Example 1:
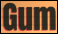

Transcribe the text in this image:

Gum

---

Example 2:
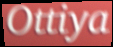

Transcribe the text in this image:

Ottiya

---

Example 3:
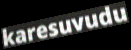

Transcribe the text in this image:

karesuvudu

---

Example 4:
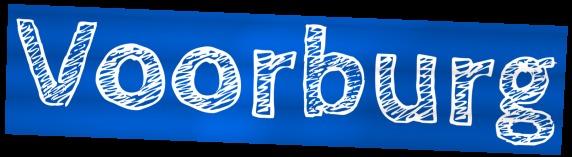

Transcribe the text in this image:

Voorburg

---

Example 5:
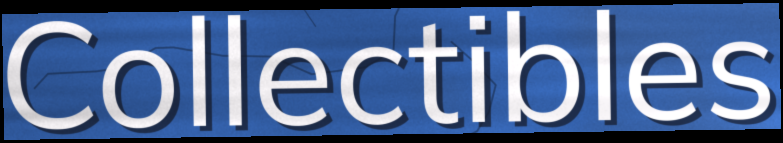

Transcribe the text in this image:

Collectibles